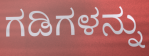
ಗಡಿಗಳನ್ನು